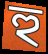
হু